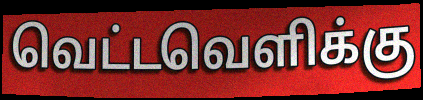
வெட்டவெளிக்கு